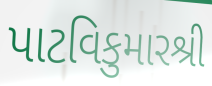
પાટવિકુમારશ્રી